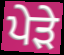
ਪੇੜੇ